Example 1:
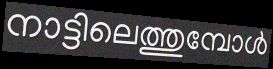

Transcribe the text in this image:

നാട്ടിലെത്തുമ്പോൾ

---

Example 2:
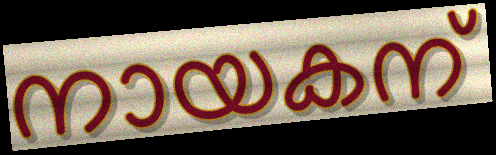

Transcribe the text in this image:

നായകന്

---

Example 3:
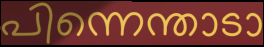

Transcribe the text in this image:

പിന്നെന്താടാ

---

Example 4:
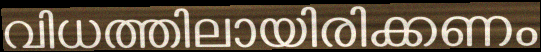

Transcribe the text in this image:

വിധത്തിലായിരിക്കണം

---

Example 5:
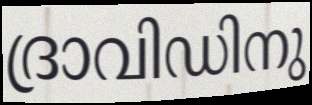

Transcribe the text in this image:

ദ്രാവിഡിനു